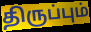
திருப்பும்